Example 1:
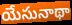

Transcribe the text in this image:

యేసునాథా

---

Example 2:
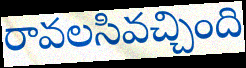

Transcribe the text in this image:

రావలసివచ్చింది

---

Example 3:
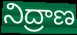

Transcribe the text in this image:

నిద్రాణ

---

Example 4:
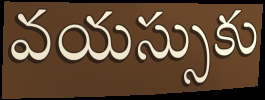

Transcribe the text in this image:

వయస్సుకు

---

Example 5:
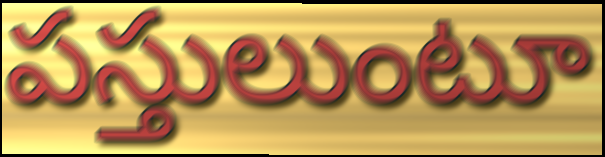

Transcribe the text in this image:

పస్తులుంటూ